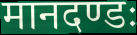
मानदण्डः